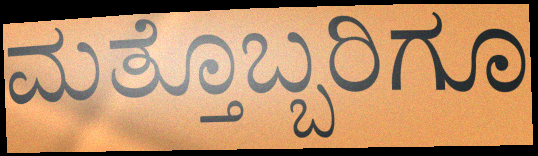
ಮತ್ತೊಬ್ಬರಿಗೂ